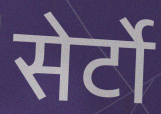
सेर्टो